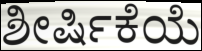
ಶೀರ್ಷಿಕೆಯೆ